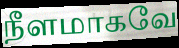
நீளமாகவே